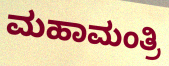
ಮಹಾಮಂತ್ರಿ